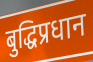
बुद्धिप्रधान